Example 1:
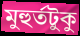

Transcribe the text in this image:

মুহুর্তটুকু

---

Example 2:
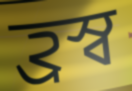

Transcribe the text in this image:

হ্রস্ব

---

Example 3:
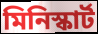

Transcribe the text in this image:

মিনিস্কার্ট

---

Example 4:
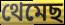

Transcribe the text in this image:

থেমেছ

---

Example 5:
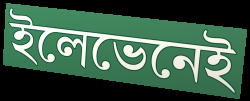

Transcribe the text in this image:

ইলেভেনেই